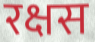
रक्षस